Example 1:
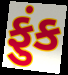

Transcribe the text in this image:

ફુંક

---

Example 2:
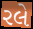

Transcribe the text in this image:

રલે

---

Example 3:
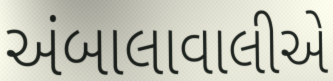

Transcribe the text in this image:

અંબાલાવાલીએ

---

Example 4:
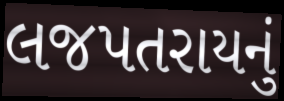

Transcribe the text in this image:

લજપતરાયનું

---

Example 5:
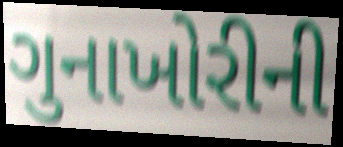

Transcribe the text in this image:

ગુનાખોરીની